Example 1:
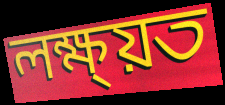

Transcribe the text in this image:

লক্ষ্য়ত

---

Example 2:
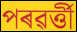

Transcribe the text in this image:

পৰৱৰ্ত্তী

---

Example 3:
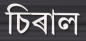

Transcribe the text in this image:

চিৰাল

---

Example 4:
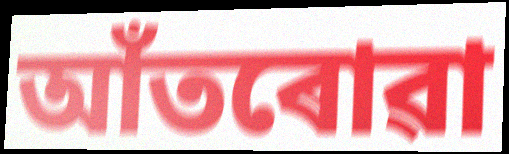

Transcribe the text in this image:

আঁতৰোৱা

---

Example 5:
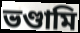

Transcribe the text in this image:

ভণ্ডামি